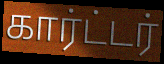
கார்ட்டர்